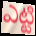
ఎట్టి